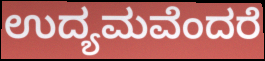
ಉದ್ಯಮವೆಂದರೆ